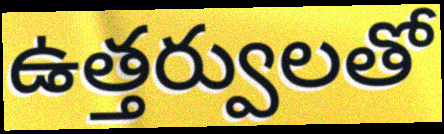
ఉత్తర్వులతో